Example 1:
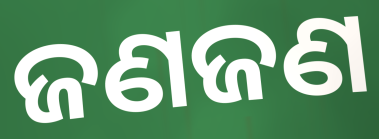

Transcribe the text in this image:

ଜଣଜଣ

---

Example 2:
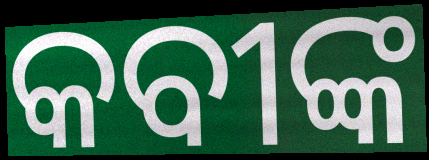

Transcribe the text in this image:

କବୀଙ୍କ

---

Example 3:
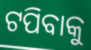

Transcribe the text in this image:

ଟପିବାକୁ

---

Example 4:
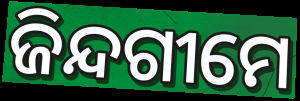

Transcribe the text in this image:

ଜିନ୍ଦଗୀମେ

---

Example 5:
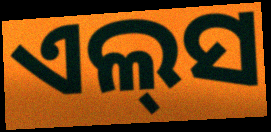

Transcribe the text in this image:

ଏଲ୍‌ସ